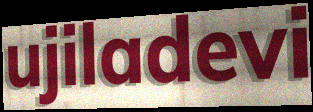
ujiladevi